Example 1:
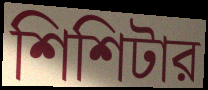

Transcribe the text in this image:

শিশিটার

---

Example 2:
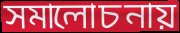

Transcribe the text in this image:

সমালোচনায়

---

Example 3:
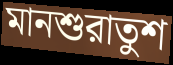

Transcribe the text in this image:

মানশুরাতুশ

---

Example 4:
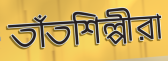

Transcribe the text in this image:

তাঁতশিল্পীরা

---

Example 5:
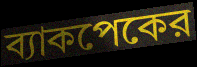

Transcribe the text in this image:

ব্যাকপেকের